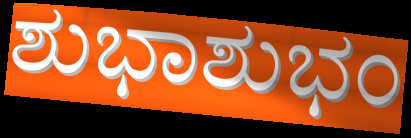
ಶುಭಾಶುಭಂ